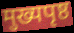
मुख्यपृष्ठ